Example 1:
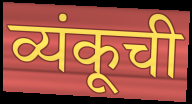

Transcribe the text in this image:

व्यंकूची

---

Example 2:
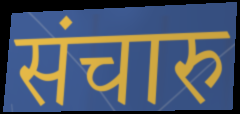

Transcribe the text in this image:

संचारु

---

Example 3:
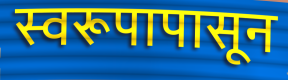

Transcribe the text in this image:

स्वरूपापासून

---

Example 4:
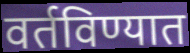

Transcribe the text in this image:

वर्तविण्यात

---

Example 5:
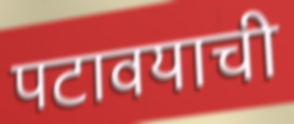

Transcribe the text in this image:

पटावयाची